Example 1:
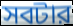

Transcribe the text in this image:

সবটার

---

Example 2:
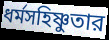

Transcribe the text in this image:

ধর্মসহিষ্ণুতার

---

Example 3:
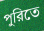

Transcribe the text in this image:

পুরিতে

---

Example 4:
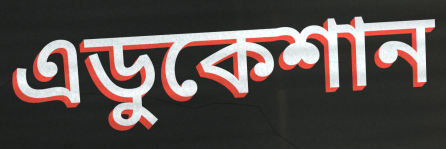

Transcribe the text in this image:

এডুকেশান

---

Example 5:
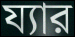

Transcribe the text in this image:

য্যার